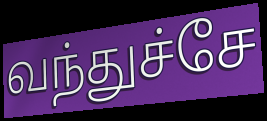
வந்துச்சே